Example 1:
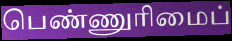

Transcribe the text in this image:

பெண்ணுரிமைப்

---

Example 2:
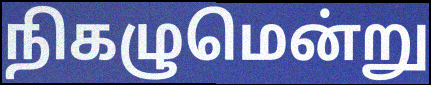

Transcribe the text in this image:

நிகழுமென்று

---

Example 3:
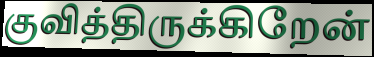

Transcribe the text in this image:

குவித்திருக்கிறேன்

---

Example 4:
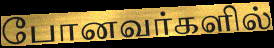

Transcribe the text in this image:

போனவர்களில்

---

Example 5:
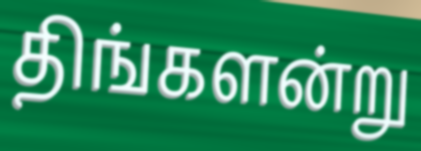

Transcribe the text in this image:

திங்களன்று